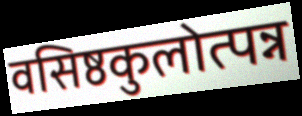
वसिष्ठकुलोत्पन्न